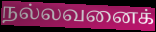
நல்லவனைக்